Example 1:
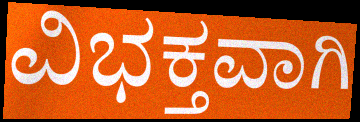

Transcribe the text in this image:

ವಿಭಕ್ತವಾಗಿ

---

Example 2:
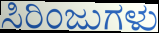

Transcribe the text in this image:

ಸಿರಿಂಜುಗಳು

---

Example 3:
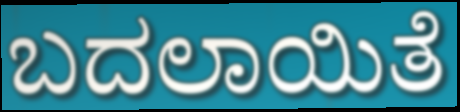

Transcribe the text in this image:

ಬದಲಾಯಿತೆ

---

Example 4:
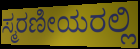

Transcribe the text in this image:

ಸ್ಮರಣೀಯರಲ್ಲಿ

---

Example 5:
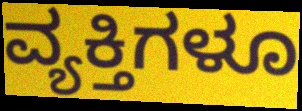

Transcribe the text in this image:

ವ್ಯಕ್ತಿಗಳೂ